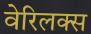
वेरिलक्स